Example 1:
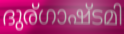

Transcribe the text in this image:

ദുര്ഗാഷ്ടമി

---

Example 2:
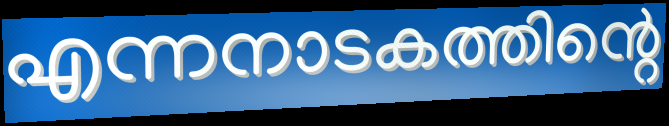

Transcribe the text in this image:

എന്നനാടകത്തിന്റെ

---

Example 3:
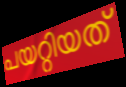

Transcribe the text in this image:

പയറ്റിയത്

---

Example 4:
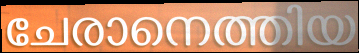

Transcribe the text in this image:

ചേരാനെത്തിയ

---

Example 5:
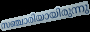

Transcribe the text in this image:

സഞ്ചാരിയായിരുന്നു